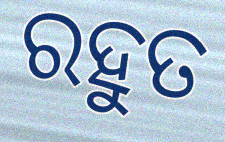
ରହୁତ